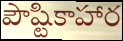
పౌష్టికాహార